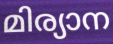
മിര്യാന